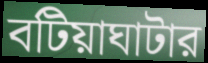
বটিয়াঘাটার